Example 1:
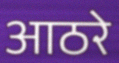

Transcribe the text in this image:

आठरे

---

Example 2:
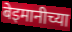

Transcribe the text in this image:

बेइमानीच्या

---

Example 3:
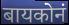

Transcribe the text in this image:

बायकोनं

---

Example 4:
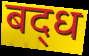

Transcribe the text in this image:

बद्ध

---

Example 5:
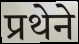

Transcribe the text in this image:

प्रथेने